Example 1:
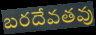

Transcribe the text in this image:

బరదేవతవు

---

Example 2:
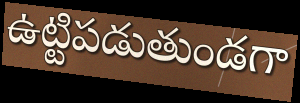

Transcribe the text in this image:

ఉట్టిపడుతుండగా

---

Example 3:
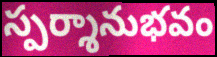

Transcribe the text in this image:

స్పర్శానుభవం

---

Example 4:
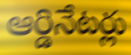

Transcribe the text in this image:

ఆర్డినేటర్లు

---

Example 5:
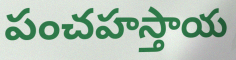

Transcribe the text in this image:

పంచహస్తాయ